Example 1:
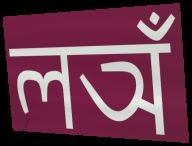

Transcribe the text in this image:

লঅঁ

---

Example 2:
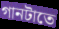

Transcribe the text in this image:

গানটাতে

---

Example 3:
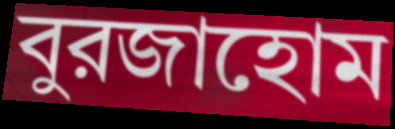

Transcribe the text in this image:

বুরজাহোম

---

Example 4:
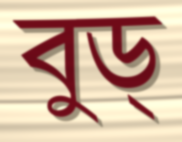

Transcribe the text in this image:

বুড্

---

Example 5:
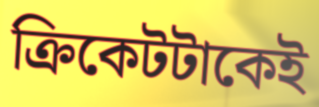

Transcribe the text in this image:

ক্রিকেটটাকেই